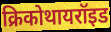
क्रिकोथायरॉइड